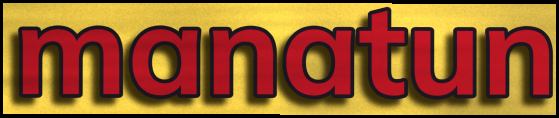
manatun